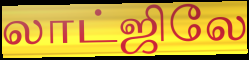
லாட்ஜிலே